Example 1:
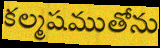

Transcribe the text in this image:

కల్మషముతోను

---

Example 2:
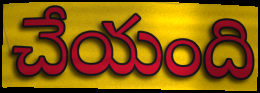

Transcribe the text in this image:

చేయంది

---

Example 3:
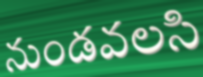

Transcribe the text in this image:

నుండవలసి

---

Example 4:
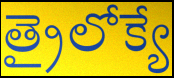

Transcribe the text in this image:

త్రైలోక్యే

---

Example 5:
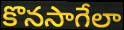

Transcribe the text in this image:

కొనసాగేలా